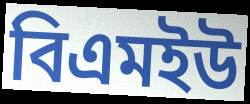
বিএমইউ